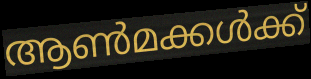
ആൺമക്കൾക്ക്